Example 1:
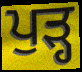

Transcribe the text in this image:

ਪੁੜ੍ਹ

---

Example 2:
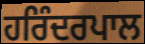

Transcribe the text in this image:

ਹਰਿੰਦਰਪਾਲ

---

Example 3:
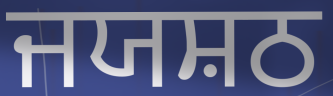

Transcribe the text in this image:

ਜਯਸ਼ਠ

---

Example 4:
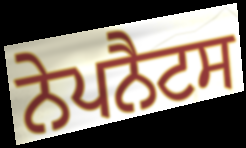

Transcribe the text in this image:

ਨੇਪਨੈਟਸ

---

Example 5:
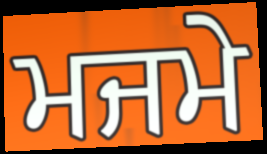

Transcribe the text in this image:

ਮਜਮੇ